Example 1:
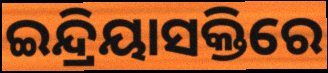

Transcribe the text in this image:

ଇନ୍ଦ୍ରିୟାସକ୍ତିରେ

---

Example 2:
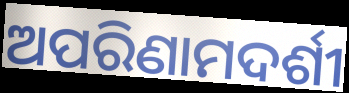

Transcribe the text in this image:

ଅପରିଣାମଦର୍ଶୀ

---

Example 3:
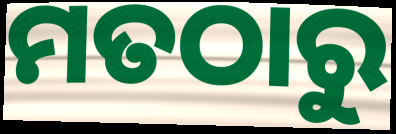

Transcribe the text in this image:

ମତଠାରୁ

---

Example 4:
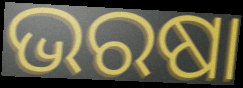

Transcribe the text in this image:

ଭରଷା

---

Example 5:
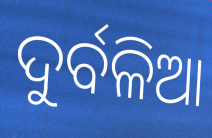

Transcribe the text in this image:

ଦୁର୍ବଳିଆ